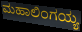
ಮಹಾಲಿಂಗಯ್ಯ